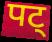
पट्